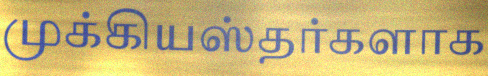
முக்கியஸ்தர்களாக